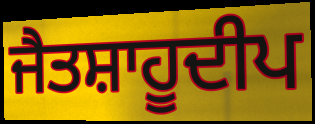
ਜੈਤਸ਼ਾਹੂਦੀਪ